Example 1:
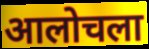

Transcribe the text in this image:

आलोचला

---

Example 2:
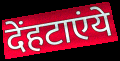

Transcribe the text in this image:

देंहटाएंये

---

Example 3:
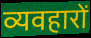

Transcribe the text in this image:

व्यवहारों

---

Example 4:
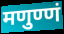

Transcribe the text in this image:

मणुण्णं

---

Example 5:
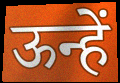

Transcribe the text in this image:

ऊन्हें